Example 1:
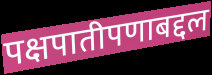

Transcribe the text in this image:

पक्षपातीपणाबद्दल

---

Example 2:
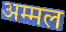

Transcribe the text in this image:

अम्मल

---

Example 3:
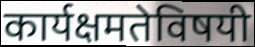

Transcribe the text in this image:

कार्यक्षमतेविषयी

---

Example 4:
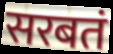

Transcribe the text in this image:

सरबतं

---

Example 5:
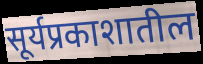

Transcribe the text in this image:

सूर्यप्रकाशातील